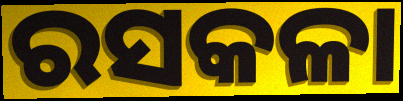
ରସକଳା